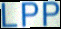
LPP